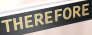
THEREFORE